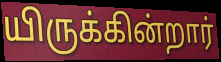
யிருக்கின்றார்